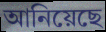
আনিয়েছে